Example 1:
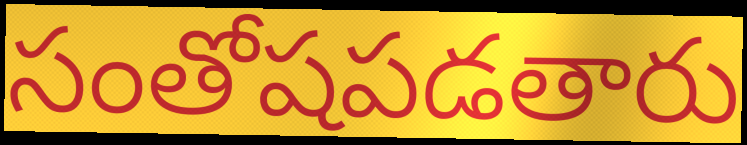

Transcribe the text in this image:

సంతోషపడతారు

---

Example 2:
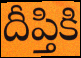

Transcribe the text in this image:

దీప్తికి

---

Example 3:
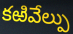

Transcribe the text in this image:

కఱివేల్పు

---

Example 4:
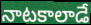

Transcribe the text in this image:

నాటకాలాడే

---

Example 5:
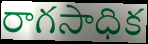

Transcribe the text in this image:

రాగసాధిక